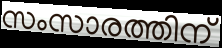
സംസാരത്തിന്